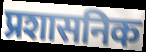
प्रशासनिक